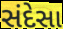
સંદેસા